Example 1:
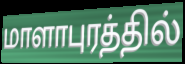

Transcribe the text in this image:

மாளாபுரத்தில்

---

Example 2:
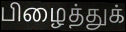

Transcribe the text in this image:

பிழைத்துக்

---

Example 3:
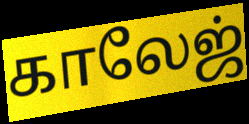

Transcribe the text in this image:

காலேஜ்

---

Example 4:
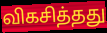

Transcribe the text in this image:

விகசித்தது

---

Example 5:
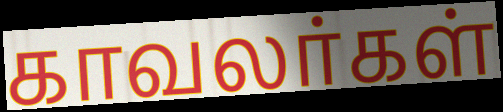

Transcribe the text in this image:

காவலர்கள்